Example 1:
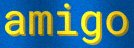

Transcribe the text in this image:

amigo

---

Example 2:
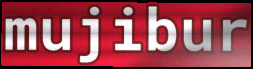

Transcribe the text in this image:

mujibur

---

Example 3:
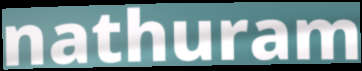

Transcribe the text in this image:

nathuram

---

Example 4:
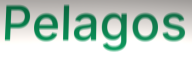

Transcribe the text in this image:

Pelagos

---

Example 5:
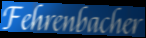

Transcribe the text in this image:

Fehrenbacher